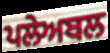
ਪਲੇਅਬਲ